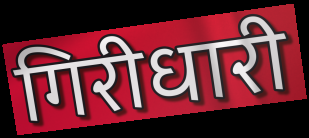
गिरीधारी